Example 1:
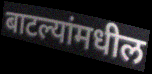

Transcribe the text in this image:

बाटल्यांमधील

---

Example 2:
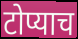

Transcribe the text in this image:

टोप्याच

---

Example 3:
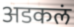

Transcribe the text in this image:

अडकलं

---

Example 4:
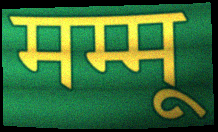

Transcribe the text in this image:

मम्मू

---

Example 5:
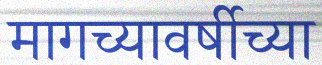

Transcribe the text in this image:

मागच्यावर्षीच्या